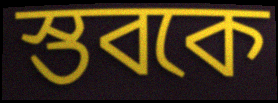
স্তবকে